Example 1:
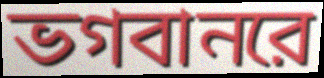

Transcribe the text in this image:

ভগবানরে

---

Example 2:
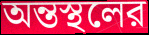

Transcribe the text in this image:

অন্তস্থলের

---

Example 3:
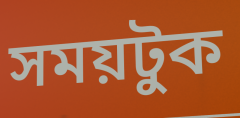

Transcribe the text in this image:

সময়টুক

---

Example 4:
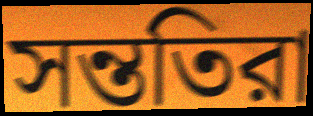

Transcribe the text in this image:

সন্ততিরা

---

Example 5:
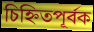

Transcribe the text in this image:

চিহ্নিতপূর্বক